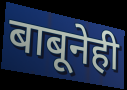
बाबूनेही